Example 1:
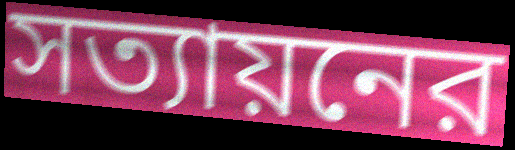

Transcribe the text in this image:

সত্যায়নের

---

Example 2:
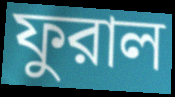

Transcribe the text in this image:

ফুরাল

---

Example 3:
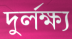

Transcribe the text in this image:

দুর্লক্ষ্য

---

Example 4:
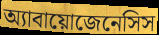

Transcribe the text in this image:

অ্যাবায়োজেনেসিস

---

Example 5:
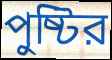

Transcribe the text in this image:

পুষ্টির